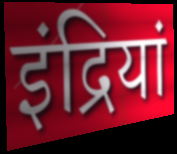
इंद्रियां